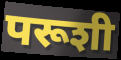
परूशी